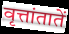
वृत्तांतातें